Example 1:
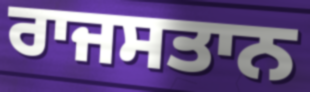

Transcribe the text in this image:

ਰਾਜਸਤਾਨ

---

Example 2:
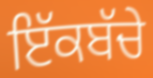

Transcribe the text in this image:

ਇੱਕਬੱਚੇ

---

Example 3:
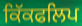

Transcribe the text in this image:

ਕਿੱਕਫਲਿਪ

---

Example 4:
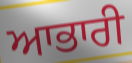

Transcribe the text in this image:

ਆਭਾਰੀ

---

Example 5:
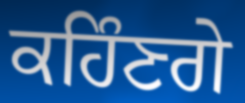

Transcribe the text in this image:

ਕਹਿੰਣਗੇ